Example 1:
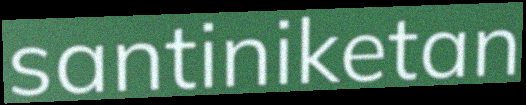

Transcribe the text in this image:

santiniketan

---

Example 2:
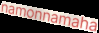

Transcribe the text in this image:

namonnamaha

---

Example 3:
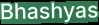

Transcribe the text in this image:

Bhashyas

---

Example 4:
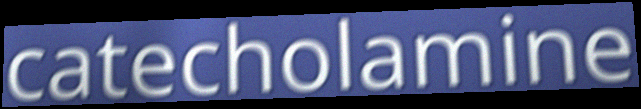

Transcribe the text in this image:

catecholamine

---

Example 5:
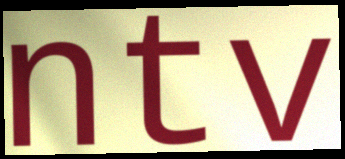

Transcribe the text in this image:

ntv